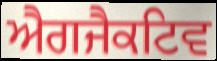
ਐਗਜੈਕਟਿਵ